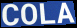
COLA